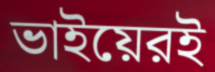
ভাইয়েরই